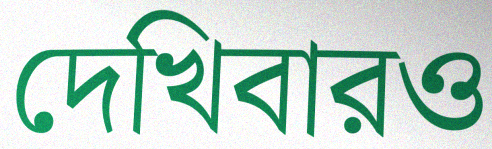
দেখিবারও